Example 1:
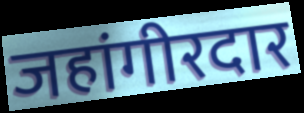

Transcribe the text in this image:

जहांगीरदार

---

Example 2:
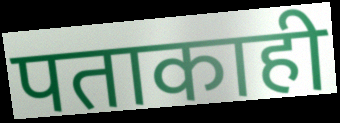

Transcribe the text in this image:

पताकाही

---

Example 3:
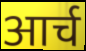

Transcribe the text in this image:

आर्च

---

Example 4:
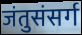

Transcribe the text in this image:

जंतुसंसर्ग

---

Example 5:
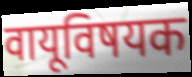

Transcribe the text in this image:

वायूविषयक